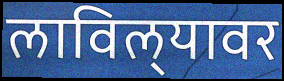
लाविल्यावर